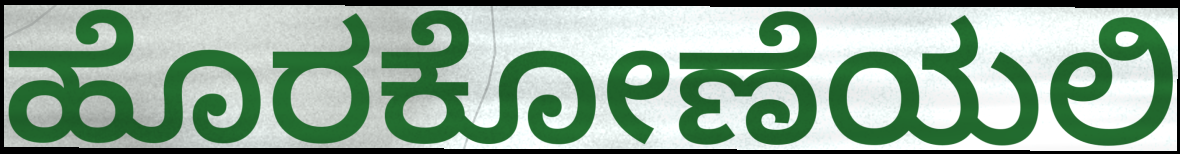
ಹೊರಕೋಣೆಯಲಿ